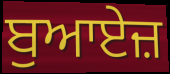
ਬੁਆਏਜ਼